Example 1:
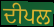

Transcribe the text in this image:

ਦੀਪਲ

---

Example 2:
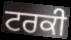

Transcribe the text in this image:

ਟਰਕੀ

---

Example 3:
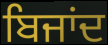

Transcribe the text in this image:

ਬਿਜਾਂਦ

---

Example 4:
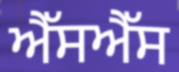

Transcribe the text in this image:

ਐੱਸਐੱਸ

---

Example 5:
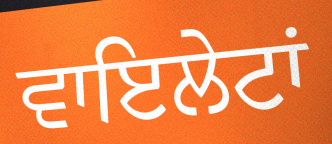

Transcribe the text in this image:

ਵਾਇਲੇਟਾਂ